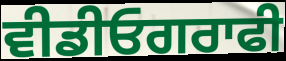
ਵੀਡੀਓਗਰਾਫੀ